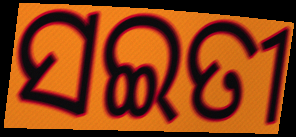
ସଇତୀ